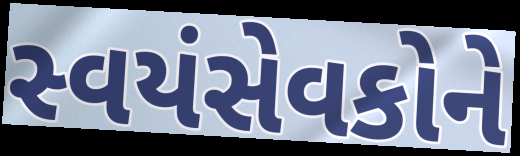
સ્વયંસેવકોને